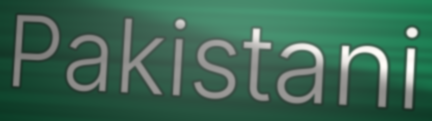
Pakistani